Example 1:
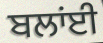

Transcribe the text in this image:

ਬਲਾਂਈ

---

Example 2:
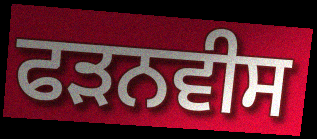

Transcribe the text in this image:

ਫੜਨਵੀਸ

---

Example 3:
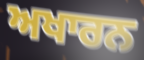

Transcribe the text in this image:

ਅਖਾਰਨ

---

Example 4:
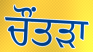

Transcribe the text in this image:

ਚੌਂਤੜਾ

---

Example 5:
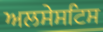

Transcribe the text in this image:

ਅਲਸੇਸਟਿਸ